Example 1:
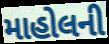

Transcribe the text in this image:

માહોલની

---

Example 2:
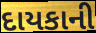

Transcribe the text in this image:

દાયકાની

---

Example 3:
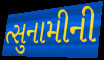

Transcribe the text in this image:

ત્સુનામીની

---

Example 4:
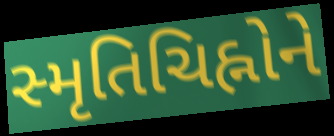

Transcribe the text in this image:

સ્મૃતિચિહ્નોને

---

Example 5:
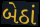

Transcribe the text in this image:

બેઠાં